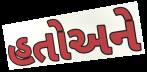
હતોઅને